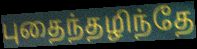
புதைந்தழிந்தே